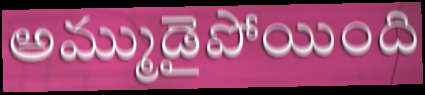
అమ్ముడైపోయింది